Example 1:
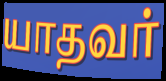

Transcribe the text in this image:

யாதவர்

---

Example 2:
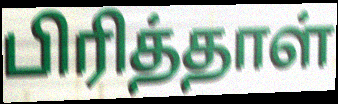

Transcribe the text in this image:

பிரித்தாள்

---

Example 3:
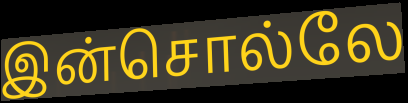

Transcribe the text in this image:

இன்சொல்லே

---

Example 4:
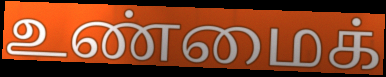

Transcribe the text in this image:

உண்மைக்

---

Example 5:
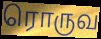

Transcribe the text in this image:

ரொருவ